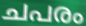
ചപരം